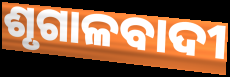
ଶୃଗାଳବାଦୀ